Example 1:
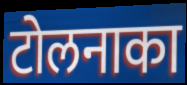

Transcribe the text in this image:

टोलनाका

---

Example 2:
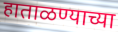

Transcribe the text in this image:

हाताळण्याच्या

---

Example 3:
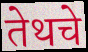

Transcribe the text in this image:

तेथचे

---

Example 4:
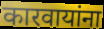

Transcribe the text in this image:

कारवायांना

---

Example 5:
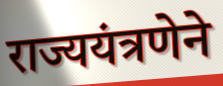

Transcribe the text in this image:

राज्ययंत्रणेने